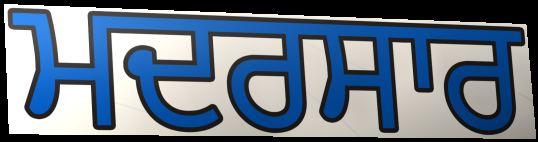
ਮਦਰਸਾਰ